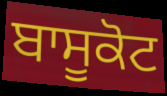
ਬਾਸੂਕੋਟ